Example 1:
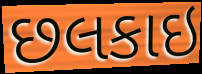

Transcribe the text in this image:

છલકાઇ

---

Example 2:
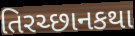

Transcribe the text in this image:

તિરચ્છાનકથા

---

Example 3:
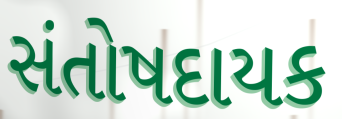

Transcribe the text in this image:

સંતોષદાયક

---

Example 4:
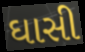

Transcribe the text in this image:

ઘાસી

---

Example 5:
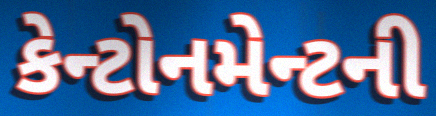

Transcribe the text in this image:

કેન્ટોનમેન્ટની